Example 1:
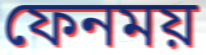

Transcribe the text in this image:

ফেনময়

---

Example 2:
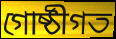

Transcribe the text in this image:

গোষ্ঠীগত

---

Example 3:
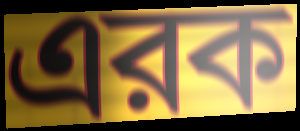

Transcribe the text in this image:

এরক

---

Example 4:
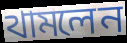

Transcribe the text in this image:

থামলেন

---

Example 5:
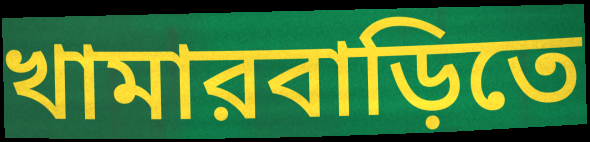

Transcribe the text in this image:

খামারবাড়িতে